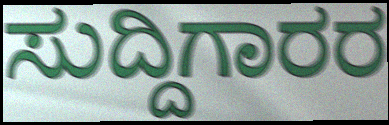
ಸುದ್ದಿಗಾರರ